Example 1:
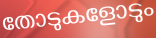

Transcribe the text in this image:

തോടുകളോടും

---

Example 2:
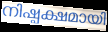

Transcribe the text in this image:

നിഷ്പക്ഷമായി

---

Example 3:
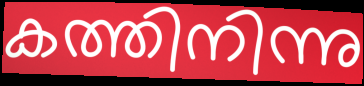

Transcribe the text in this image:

കത്തിനിന്നു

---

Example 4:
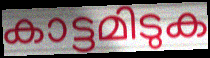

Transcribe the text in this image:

കാട്ടമിടുക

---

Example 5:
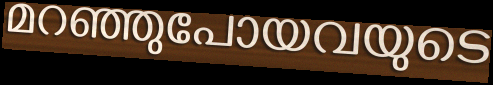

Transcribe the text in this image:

മറഞ്ഞുപോയവയുടെ